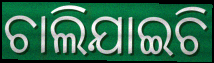
ଚାଲିଯାଇଚି